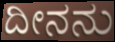
ದೀನನು